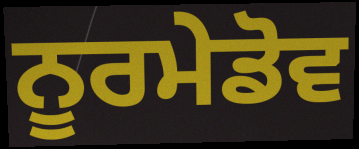
ਨੂਰਮੇਡੋਵ